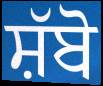
ਸ਼ੱਬੋ